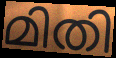
മിതി